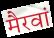
मैरवां